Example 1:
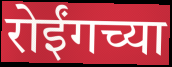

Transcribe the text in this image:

रोईंगच्या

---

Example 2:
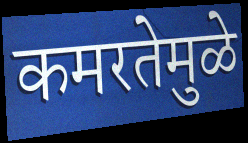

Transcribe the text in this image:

कमरतेमुळे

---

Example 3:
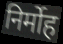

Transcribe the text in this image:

निर्मोह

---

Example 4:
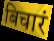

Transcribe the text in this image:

बिचारं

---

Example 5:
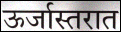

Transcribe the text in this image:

ऊर्जास्तरात